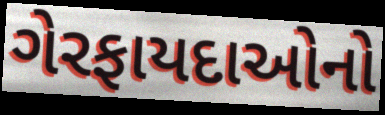
ગેરફાયદાઓનો